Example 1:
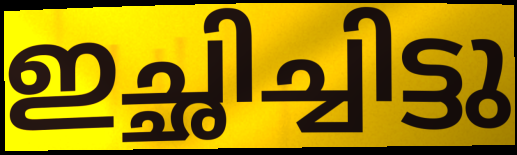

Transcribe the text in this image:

ഇച്ഛിച്ചിട്ടു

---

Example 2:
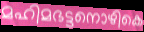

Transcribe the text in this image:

മഹിമഭട്ടനൊഴികെ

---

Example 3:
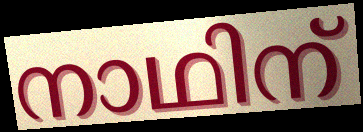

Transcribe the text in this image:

നാഥിന്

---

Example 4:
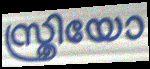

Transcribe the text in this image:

സ്ത്രിയോ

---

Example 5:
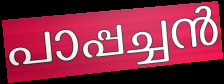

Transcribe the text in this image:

പാപ്പച്ചൻ